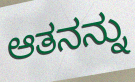
ಆತನನ್ನು